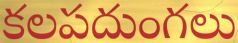
కలపదుంగలు